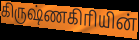
கிருஷ்ணகிரியின்